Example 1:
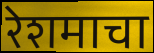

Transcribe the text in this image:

रेशमाचा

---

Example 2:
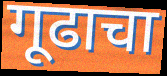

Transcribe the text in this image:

गूढाचा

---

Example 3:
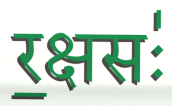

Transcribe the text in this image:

र॒क्षसः॑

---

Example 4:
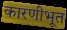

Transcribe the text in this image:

कारणीभूत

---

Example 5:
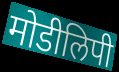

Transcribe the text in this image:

मोडीलिपी